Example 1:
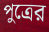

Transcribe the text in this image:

পুত্রের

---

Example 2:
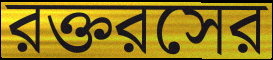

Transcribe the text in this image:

রক্তরসের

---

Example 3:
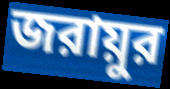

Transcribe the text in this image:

জরায়ুর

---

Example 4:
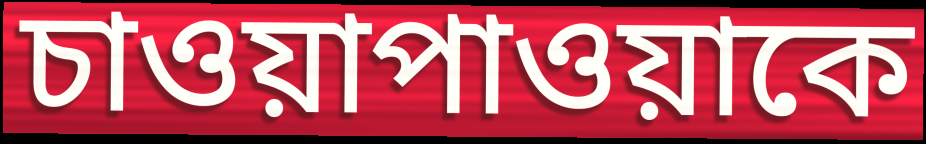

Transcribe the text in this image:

চাওয়াপাওয়াকে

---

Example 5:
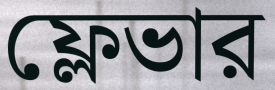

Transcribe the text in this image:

ফ্লেভার